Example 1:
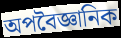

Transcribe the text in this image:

অপবৈজ্ঞানিক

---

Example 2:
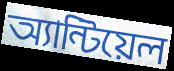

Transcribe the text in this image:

অ্যান্টিয়েল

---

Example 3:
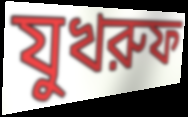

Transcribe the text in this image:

যুখরুফ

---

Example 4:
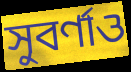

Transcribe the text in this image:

সুবর্ণাও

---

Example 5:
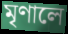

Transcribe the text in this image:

মৃণালে